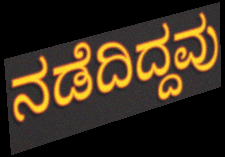
ನಡೆದಿದ್ದವು